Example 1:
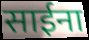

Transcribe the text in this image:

साईना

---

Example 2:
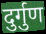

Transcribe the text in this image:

दुर्गुण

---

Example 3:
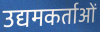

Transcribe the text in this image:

उद्यमकर्ताओं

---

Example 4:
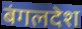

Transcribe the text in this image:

बंगलदेश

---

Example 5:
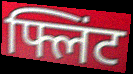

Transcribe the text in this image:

फ्लिंट